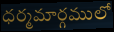
ధర్మమార్గములో